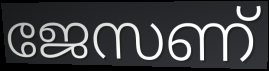
ജേസണ്